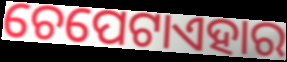
ଚେପେଟାଏହାର